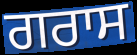
ਗਰਾਸ